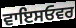
ਵਾਇਸਓਵਰ